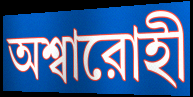
অশ্বারোহী